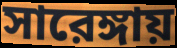
সারেঙ্গায়